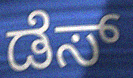
ಡೆಸ್